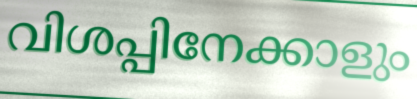
വിശപ്പിനേക്കാളും